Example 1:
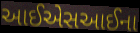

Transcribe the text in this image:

આઈએસઆઈના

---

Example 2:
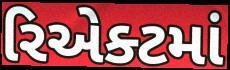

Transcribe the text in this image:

રિએક્ટમાં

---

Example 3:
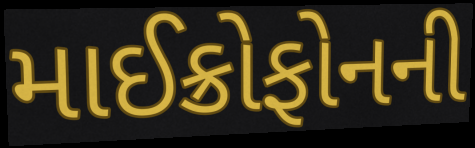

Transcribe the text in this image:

માઈક્રોફોનની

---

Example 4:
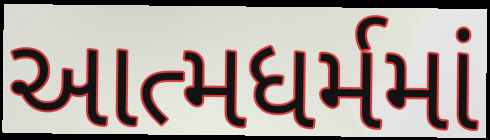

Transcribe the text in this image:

આત્મધર્મમાં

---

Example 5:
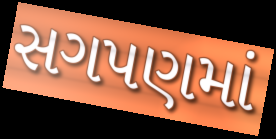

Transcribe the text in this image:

સગપણમાં